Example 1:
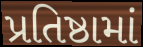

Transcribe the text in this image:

પ્રતિષ્ઠામાં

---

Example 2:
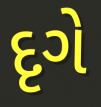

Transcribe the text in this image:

દૃગે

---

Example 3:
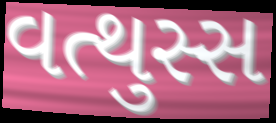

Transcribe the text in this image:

વત્થુસ્સ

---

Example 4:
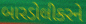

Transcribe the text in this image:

બારડોલીકરને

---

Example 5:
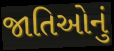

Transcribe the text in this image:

જાતિઓનું